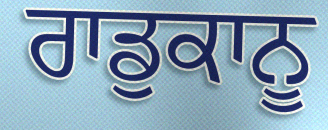
ਰਾਡੁਕਾਨੂ